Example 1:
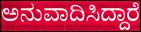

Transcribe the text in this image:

ಅನುವಾದಿಸಿದ್ದಾರೆ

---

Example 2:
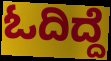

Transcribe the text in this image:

ಓದಿದ್ದೆ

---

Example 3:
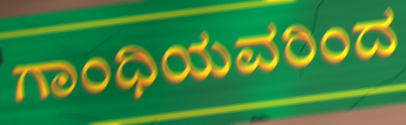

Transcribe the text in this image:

ಗಾಂಧಿಯವರಿಂದ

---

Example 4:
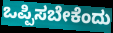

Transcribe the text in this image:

ಒಪ್ಪಿಸಬೇಕೆಂದು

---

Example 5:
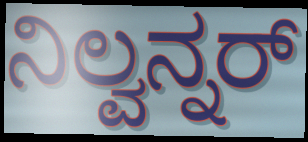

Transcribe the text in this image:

ನಿಲ್ವನ್ನರ್